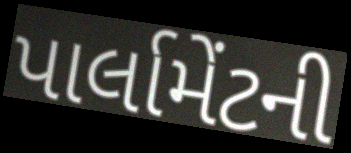
પાર્લામેંટની